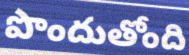
పొందుతోంది